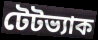
টেটভ্যাক